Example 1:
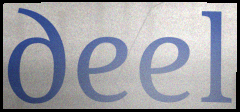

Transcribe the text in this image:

deel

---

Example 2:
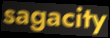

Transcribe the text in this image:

sagacity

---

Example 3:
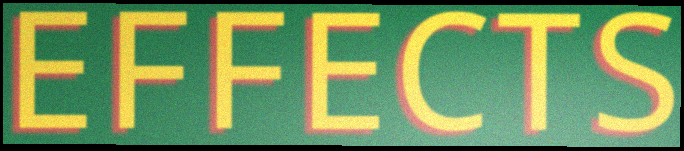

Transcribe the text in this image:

EFFECTS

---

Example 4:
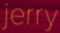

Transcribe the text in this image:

jerry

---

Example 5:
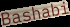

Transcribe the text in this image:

Bashabi